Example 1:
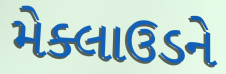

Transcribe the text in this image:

મેક્લાઉડને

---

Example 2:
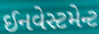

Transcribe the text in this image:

ઈનવેસ્ટમેન્ટ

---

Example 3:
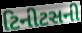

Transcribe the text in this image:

ટિનીટસની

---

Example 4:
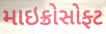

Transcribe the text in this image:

માઇક્રોસોફ્ટ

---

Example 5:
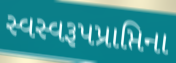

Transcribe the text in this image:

સ્વસ્વરૂપપ્રાપ્તિના